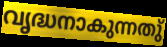
വൃദ്ധനാകുന്നതു്